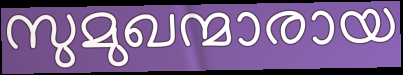
സുമുഖന്മാരായ